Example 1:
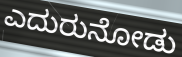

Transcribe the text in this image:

ಎದುರುನೋಡು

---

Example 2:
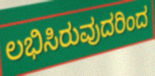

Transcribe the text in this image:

ಲಭಿಸಿರುವುದರಿಂದ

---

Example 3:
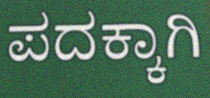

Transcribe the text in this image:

ಪದಕ್ಕಾಗಿ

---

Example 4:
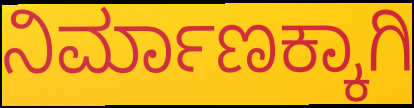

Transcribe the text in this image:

ನಿರ್ಮಾಣಕ್ಕಾಗಿ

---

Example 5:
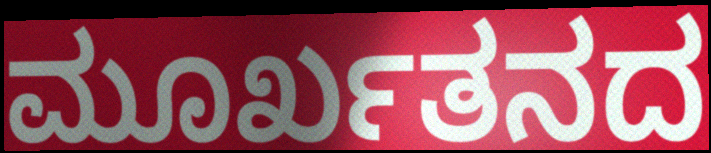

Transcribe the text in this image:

ಮೂರ್ಖತನದ